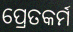
ପ୍ରେତକର୍ମ